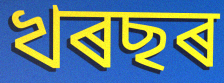
খৰছৰ